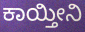
ಕಾಯ್ತೀನಿ